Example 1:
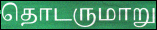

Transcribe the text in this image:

தொடருமாறு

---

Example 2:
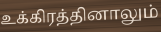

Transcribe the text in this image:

உக்கிரத்தினாலும்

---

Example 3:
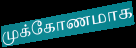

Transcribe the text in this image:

முக்கோணமாக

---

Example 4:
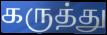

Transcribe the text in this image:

கருத்து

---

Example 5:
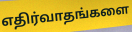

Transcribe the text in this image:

எதிர்வாதங்களை